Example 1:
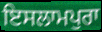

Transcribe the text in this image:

ਇਸਲਾਮਪੁਰਾ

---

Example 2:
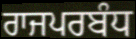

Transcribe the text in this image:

ਰਾਜਪਰਬੰਧ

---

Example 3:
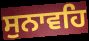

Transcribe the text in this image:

ਸੁਨਾਵਹਿ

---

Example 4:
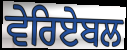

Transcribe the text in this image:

ਵੇਰਿਏਬਲ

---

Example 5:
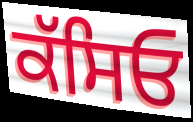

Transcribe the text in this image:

ਕੱਸਿਓ